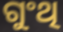
ଗୁଂଥି